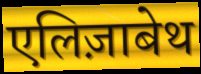
एलिज़ाबेथ